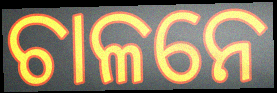
ଚାଳନେ